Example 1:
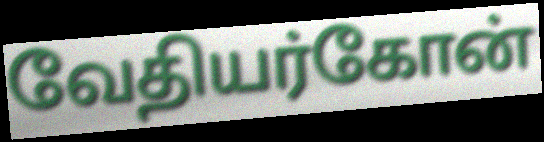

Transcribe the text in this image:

வேதியர்கோன்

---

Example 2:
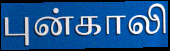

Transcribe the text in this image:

புன்காலி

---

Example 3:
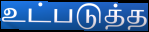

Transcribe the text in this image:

உட்படுத்த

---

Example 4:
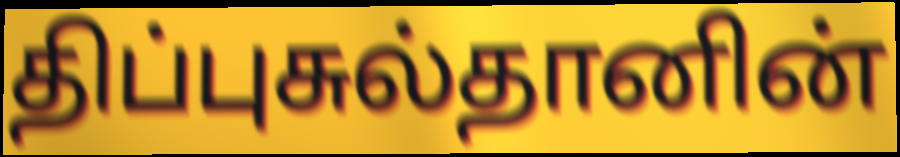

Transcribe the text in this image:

திப்புசுல்தானின்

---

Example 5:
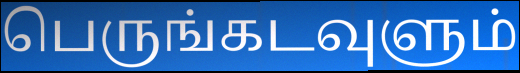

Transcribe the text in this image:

பெருங்கடவுளும்